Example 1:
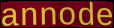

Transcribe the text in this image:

annode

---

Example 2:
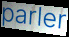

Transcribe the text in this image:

parler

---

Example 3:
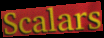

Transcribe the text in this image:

Scalars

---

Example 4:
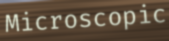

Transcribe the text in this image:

Microscopic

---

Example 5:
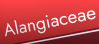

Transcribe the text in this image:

Alangiaceae